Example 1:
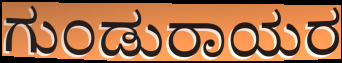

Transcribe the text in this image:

ಗುಂಡುರಾಯರ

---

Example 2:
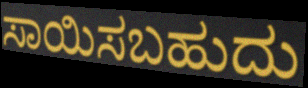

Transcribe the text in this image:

ಸಾಯಿಸಬಹುದು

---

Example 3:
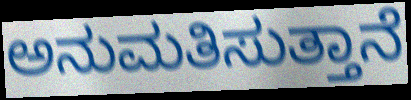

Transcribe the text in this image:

ಅನುಮತಿಸುತ್ತಾನೆ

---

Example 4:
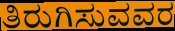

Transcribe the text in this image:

ತಿರುಗಿಸುವವರ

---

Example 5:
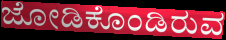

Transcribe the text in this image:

ಜೋಡಿಕೊಂಡಿರುವ